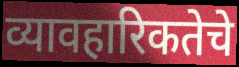
व्यावहारिकतेचे